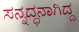
ಸನ್ನದ್ಧನಾಗಿದ್ದ